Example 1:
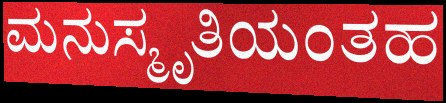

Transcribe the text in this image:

ಮನುಸ್ಮೃತಿಯಂತಹ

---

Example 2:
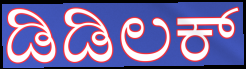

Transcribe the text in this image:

ಡಿಡಿಲಕ್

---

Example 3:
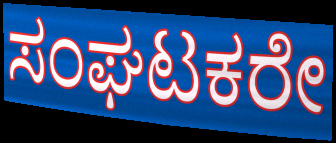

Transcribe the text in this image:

ಸಂಘಟಕರೇ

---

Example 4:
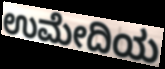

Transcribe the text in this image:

ಉಮೇದಿಯ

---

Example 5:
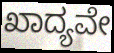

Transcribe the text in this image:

ಖಾದ್ಯವೇ